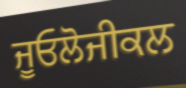
ਜੂਓਲੋਜੀਕਲ